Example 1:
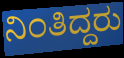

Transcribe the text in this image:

ನಿಂತಿದ್ದರು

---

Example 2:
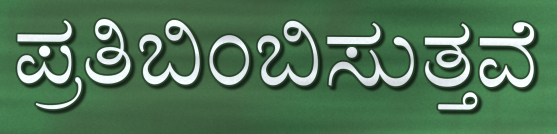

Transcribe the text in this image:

ಪ್ರತಿಬಿಂಬಿಸುತ್ತವೆ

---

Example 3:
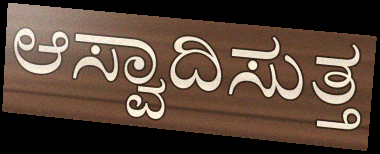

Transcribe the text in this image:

ಆಸ್ವಾದಿಸುತ್ತ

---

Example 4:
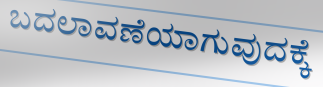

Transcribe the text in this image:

ಬದಲಾವಣೆಯಾಗುವುದಕ್ಕೆ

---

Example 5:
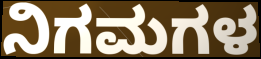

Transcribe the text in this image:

ನಿಗಮಗಳ